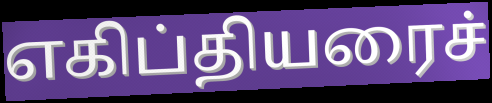
எகிப்தியரைச்